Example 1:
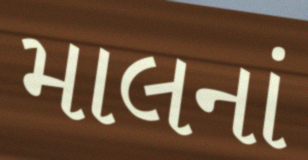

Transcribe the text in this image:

માલનાં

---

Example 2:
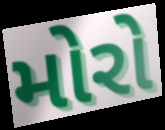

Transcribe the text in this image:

મોરો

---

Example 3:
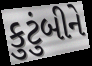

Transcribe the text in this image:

કુટુંબીને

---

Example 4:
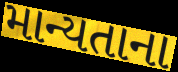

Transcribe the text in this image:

માન્યતાના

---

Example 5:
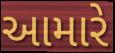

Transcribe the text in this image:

આમારે